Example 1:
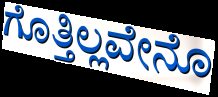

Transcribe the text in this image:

ಗೊತ್ತಿಲ್ಲವೇನೊ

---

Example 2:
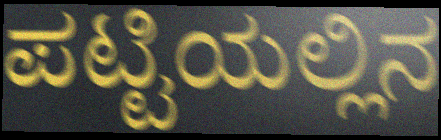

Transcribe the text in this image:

ಪಟ್ಟಿಯಲ್ಲಿನ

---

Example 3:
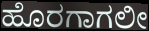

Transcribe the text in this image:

ಹೊರಗಾಗಲೀ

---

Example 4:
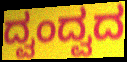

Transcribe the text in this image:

ದ್ವಂದ್ವದ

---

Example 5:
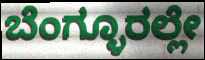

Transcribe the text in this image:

ಬೆಂಗ್ಳೂರಲ್ಲೇ